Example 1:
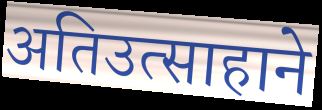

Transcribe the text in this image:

अतिउत्साहाने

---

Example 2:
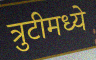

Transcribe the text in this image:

त्रुटीमध्ये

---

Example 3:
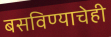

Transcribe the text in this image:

बसविण्याचेही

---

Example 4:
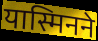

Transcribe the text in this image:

यास्मिनने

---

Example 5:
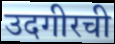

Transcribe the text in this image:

उदगीरची